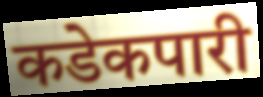
कडेकपारी